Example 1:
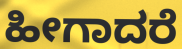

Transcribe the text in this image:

ಹೀಗಾದರೆ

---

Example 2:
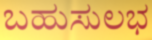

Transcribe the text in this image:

ಬಹುಸುಲಭ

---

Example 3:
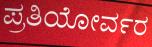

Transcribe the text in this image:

ಪ್ರತಿಯೋರ್ವರ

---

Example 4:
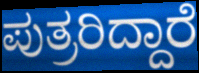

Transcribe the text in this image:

ಪುತ್ರರಿದ್ದಾರೆ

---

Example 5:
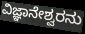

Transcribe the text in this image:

ವಿಜ್ಞಾನೇಶ್ವರನು